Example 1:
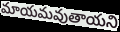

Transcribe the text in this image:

మాయమవుతాయని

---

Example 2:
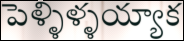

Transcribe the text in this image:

పెళ్ళిళ్ళయ్యాక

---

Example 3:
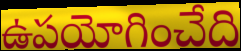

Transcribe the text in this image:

ఉపయోగించేది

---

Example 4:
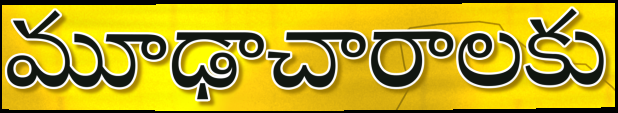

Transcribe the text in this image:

మూఢాచారాలకు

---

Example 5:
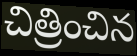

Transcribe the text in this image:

చిత్రించిన